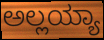
ಅಲ್ಲಯ್ಯಾ